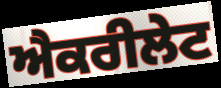
ਐਕਰੀਲੇਟ